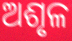
ଅଶୃଳ